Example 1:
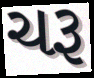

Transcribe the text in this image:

ચરૂ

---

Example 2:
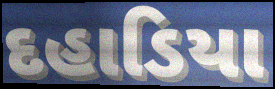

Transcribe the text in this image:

દહાડિયા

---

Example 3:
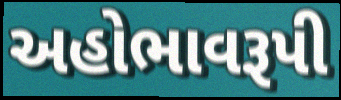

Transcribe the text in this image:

અહોભાવરૂપી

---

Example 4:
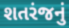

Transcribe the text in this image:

શતરંજનું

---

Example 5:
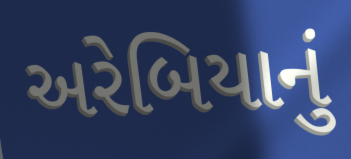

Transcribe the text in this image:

અરેબિયાનું